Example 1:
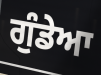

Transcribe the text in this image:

ਗੁੰਡੇਆ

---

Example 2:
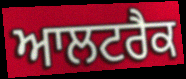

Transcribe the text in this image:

ਆਲਟਰੈਕ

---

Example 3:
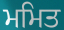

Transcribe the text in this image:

ਮਮਿਤ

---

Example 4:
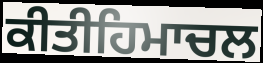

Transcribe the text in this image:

ਕੀਤੀਹਿਮਾਚਲ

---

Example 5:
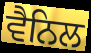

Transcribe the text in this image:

ਵੈਨਿਲ